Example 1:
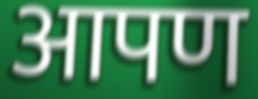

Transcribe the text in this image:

आपण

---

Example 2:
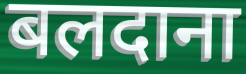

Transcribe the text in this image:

बलदाना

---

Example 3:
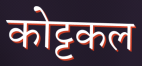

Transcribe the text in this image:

कोट्टकल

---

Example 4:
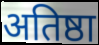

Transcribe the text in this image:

अतिष्ठा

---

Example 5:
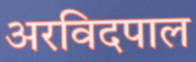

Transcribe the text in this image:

अरविदपाल